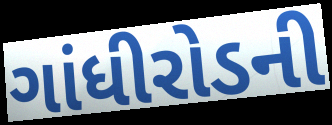
ગાંધીરોડની